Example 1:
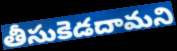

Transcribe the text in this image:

తీసుకెడదామని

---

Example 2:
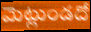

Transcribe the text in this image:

మెట్లుండదో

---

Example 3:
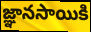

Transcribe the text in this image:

జ్ఞానసాయికి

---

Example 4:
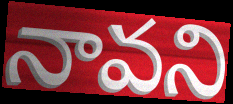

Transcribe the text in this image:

నావని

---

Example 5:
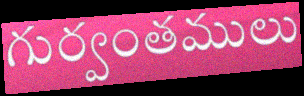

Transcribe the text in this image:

గుర్వంతములు